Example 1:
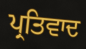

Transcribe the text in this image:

ਪ੍ਰਤਿਵਾਦ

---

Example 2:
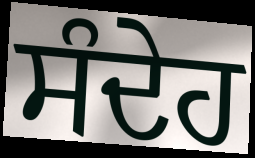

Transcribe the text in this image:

ਸੰਦੇਹ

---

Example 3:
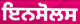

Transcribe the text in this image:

ਇਨਸੋਲਸ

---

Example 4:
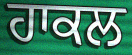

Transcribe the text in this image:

ਹਾਕਲ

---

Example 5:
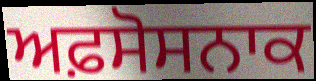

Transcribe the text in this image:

ਅਫ਼ਸੋਸਨਾਕ